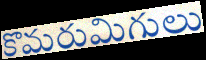
కొమరుమిగులు